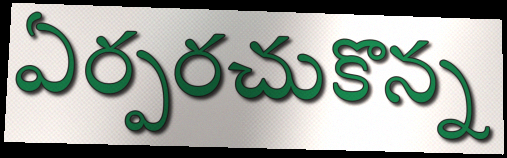
ఏర్పరచుకొన్న